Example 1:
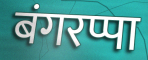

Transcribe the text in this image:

बंगरप्पा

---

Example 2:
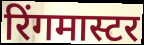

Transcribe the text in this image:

रिंगमास्टर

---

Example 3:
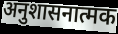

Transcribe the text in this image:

अनुशासनात्मक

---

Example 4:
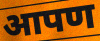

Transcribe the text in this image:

आपण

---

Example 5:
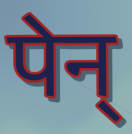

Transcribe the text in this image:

पेन्